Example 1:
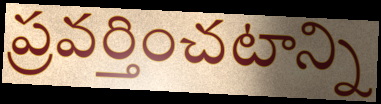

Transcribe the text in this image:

ప్రవర్తించటాన్ని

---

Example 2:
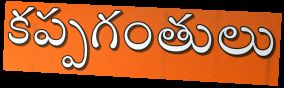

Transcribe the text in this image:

కప్పగంతులు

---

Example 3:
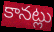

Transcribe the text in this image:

కానట్లు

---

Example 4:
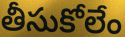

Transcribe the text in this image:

తీసుకోలేం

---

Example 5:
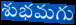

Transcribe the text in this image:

శుభమగు